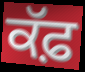
ਕੱਫ਼